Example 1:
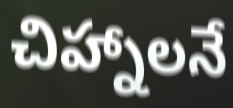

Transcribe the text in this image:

చిహ్నాలనే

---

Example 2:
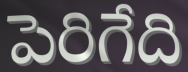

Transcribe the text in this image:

పెరిగేది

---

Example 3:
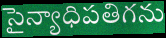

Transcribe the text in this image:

సైన్యాధిపతిగను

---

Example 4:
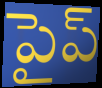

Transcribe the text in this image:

పైప్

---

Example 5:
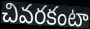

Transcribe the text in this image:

చివరకంటా